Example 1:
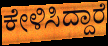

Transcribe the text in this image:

ಕೇಳಿಸಿದ್ದಾರೆ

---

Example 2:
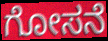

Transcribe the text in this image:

ಗೋಸನೆ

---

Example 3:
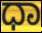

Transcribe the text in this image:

ಧಾ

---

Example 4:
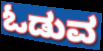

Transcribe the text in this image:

ಓಡುವ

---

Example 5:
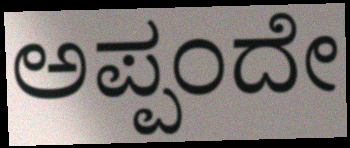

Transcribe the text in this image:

ಅಪ್ಪಂದೇ